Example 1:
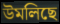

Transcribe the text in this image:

উমলিছে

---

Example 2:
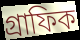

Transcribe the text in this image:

গ্ৰাফিক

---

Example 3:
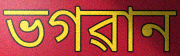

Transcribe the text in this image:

ভগৱান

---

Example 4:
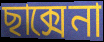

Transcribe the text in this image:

ছাক্সেনা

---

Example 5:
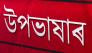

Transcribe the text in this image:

উপভাষাৰ